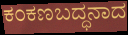
ಕಂಕಣಬದ್ಧನಾದ